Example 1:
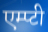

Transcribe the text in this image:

एम्प्टी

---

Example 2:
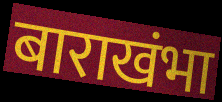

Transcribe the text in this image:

बाराखंभा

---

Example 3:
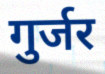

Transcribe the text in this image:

गुर्जर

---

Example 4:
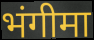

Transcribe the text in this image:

भंगीमा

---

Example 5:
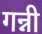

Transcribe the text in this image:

गन्नी